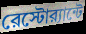
রেস্টোর‍্যান্টে